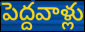
పెద్దవాళ్లు